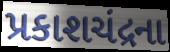
પ્રકાશચંદ્રના